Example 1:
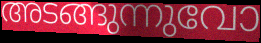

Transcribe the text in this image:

അടങ്ങുന്നുവോ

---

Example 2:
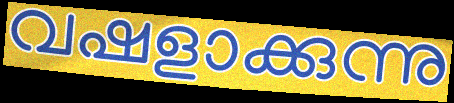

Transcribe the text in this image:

വഷളാക്കുന്നു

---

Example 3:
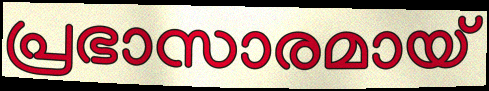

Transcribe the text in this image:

പ്രഭാസാരമായ്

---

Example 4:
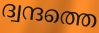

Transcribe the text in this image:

ദ്വന്ദത്തെ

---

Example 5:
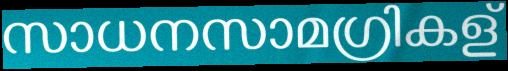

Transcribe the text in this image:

സാധനസാമഗ്രികള്